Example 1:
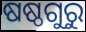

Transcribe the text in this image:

ଷଷ୍ଠଗୁରୁ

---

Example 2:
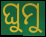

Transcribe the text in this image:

ଘୁମୁ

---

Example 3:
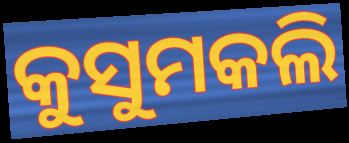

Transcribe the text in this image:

କୁସୁମକଲି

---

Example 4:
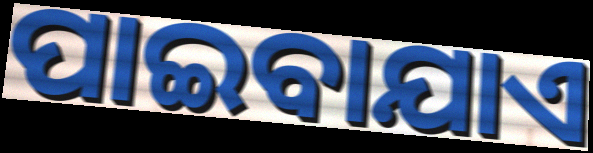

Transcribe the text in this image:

ପାଇବାଯାଏ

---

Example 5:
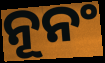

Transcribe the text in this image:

ନୂନଂ